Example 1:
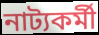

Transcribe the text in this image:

নাট্যকৰ্মী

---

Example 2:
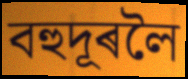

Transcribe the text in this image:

বহুদূৰলৈ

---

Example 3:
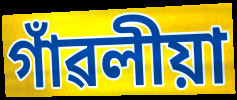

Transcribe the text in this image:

গাঁৱলীয়া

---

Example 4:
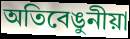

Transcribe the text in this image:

অতিবেঙুনীয়া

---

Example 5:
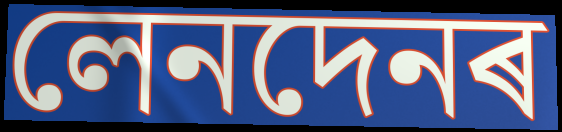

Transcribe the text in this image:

লেনদেনৰ